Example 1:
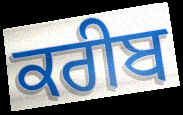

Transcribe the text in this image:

ਕਰੀਬ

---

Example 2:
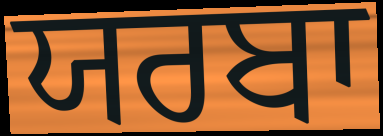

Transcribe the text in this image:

ਯਰਬਾ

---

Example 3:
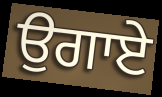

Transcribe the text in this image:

ਉਗਾਏ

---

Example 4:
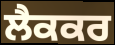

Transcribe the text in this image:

ਲੈਕਕਰ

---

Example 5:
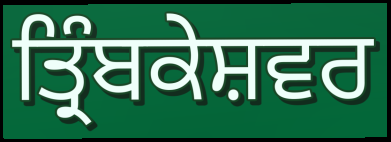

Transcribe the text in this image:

ਤ੍ਰਿੰਬਕੇਸ਼ਵਰ